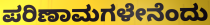
ಪರಿಣಾಮಗಳೇನೆಂದು